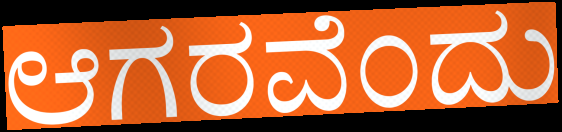
ಆಗರವೆಂದು